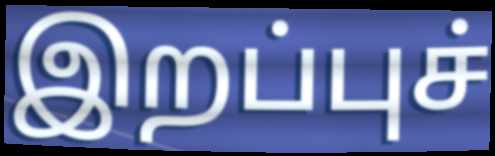
இறப்புச்